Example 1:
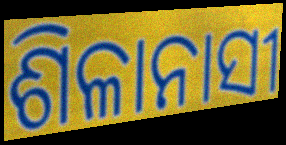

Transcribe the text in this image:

ଶିଳାନାସୀ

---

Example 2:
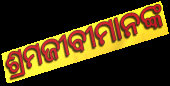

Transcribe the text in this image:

ଶ୍ରମଜୀବୀମାନଙ୍କ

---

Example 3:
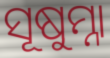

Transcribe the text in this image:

ସୂଷୁମ୍ନା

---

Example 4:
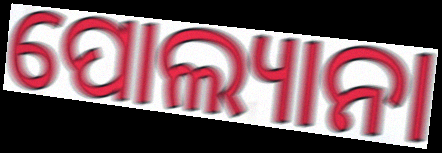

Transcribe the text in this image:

ପୋଲ୍ୟାନା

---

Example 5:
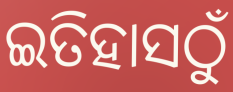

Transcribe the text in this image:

ଇତିହାସଠୁଁ